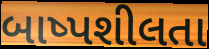
બાષ્પશીલતા